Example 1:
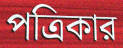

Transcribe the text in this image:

পত্রিকার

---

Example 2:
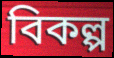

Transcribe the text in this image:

বিকল্প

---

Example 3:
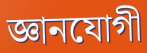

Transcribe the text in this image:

জ্ঞানযোগী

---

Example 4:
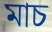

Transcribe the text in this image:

মাচ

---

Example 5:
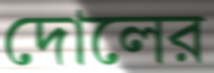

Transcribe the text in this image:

দোলের